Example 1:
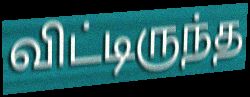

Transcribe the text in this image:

விட்டிருந்த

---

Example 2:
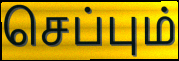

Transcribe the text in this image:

செப்பும்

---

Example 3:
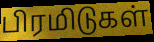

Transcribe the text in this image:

பிரமிடுகள்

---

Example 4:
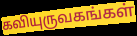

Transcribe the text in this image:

கவியுருவகங்கள்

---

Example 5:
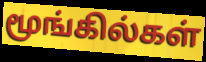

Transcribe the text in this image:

மூங்கில்கள்